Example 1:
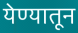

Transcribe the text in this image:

येण्यातून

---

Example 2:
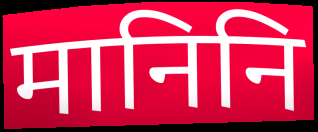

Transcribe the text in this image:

मानिनि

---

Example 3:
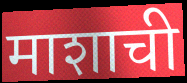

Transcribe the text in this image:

माशाची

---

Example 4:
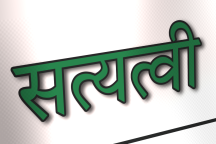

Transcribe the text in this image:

सत्यत्वी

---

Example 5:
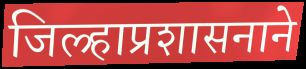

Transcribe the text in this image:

जिल्हाप्रशासनाने